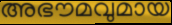
അഭൗമവുമായ